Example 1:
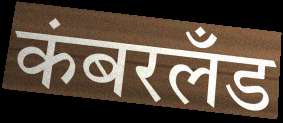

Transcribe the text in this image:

कंबरलँड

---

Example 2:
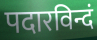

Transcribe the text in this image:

पदारविन्दं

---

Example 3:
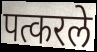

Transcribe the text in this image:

पत्करले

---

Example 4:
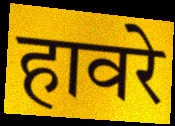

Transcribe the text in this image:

हावरे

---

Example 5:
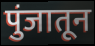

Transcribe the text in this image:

पुंजातून